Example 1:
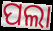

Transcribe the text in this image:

ପଲା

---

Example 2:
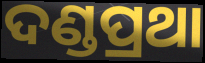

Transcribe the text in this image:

ଦଣ୍ଡପ୍ରଥା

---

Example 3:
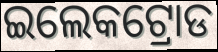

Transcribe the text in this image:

ଇଲେକଟ୍ରୋଡ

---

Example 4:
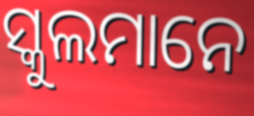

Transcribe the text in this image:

ସ୍କୁଲମାନେ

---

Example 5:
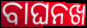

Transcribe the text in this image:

ବାଘନଖ